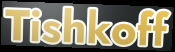
Tishkoff